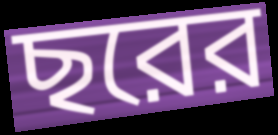
ছরের